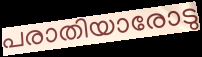
പരാതിയാരോടു